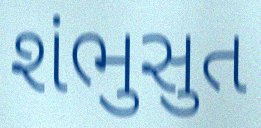
શંભુસુત